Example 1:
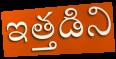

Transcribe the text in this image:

ఇత్తడిని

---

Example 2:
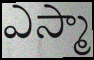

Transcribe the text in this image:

ఎస్మా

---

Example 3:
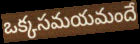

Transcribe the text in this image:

ఒక్కసమయమందే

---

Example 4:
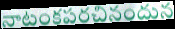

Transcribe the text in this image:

నాటంకపరచినందున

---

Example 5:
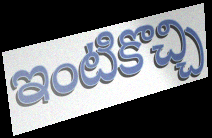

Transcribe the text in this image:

ఇంటికొచ్చి